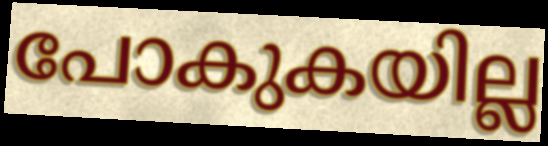
പോകുകയില്ല